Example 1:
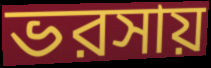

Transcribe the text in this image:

ভরসায়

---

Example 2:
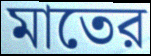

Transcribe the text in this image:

মাতের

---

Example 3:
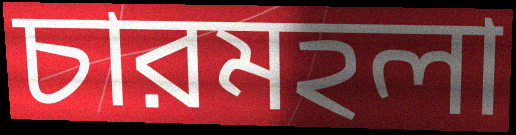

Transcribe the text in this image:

চারমহলা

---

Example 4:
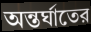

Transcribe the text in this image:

অন্তর্ঘাতের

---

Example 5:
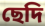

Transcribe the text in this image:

ছেদি